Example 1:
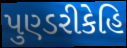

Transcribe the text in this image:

પુણ્ડરીકેહિ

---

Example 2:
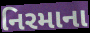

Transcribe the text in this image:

નિરમાના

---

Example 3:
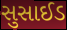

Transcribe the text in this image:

સુસાઈડ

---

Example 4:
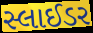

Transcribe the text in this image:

સ્લાઈડર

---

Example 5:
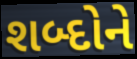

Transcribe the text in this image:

શબ્દોને